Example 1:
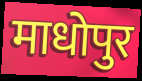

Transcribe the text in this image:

माधोपुर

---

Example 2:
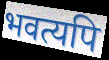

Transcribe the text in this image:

भवत्यपि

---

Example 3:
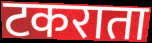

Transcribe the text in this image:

टकराता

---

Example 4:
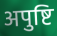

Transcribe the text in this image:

अपुष्टि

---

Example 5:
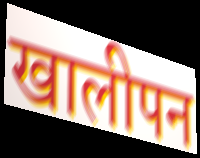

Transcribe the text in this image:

खालीपन